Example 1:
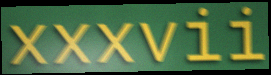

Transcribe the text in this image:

xxxvii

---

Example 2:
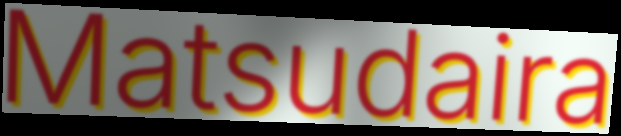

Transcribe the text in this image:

Matsudaira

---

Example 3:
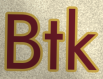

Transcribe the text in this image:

Btk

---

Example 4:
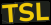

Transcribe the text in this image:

TSL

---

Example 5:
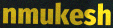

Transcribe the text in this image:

nmukesh